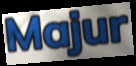
Majur